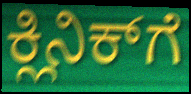
ಕ್ಲಿನಿಕ್‍ಗೆ